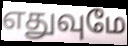
எதுவுமே